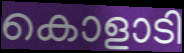
കൊളാടി